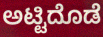
ಅಟ್ಟಿದೊಡೆ